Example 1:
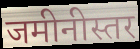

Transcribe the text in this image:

जमीनीस्तर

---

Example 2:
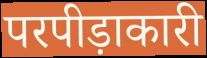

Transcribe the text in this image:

परपीड़ाकारी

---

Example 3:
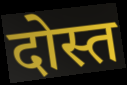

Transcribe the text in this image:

दोस्‍त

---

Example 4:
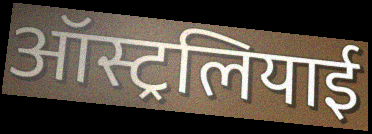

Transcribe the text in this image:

ऑस्ट्रलियाई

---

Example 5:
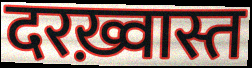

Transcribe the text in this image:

दरख़्वास्त